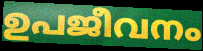
ഉപജീവനം